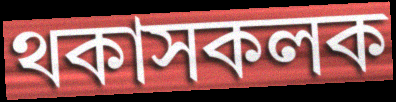
থকাসকলক